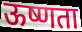
ऊष्णता